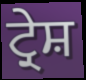
ਟ੍ਰੇਸ਼